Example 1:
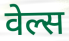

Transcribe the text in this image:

वेल्स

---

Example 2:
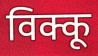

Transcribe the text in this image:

विक्कू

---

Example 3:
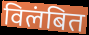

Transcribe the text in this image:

विलंबित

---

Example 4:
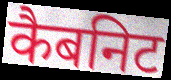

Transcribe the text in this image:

कैबनिट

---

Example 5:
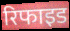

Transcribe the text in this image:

रिफाइड